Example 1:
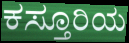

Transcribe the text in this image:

ಕಸ್ತೂರಿಯ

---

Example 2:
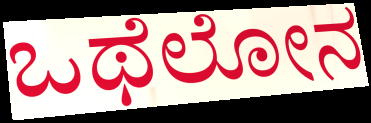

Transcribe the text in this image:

ಒಥೆಲೋನ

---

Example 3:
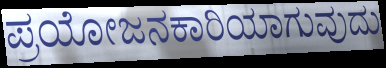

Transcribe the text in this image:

ಪ್ರಯೋಜನಕಾರಿಯಾಗುವುದು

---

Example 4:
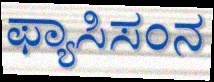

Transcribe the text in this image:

ಫ್ಯಾಸಿಸಂನ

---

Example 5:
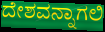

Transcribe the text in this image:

ದೇಶವನ್ನಾಗಲಿ